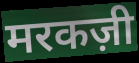
मरकज़ी